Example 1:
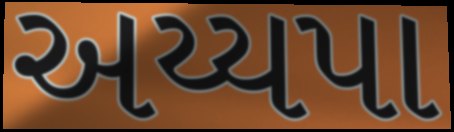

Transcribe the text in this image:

અય્યપા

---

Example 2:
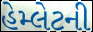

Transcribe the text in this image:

હેમ્લેટની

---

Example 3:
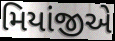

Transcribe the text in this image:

મિયાંજીએ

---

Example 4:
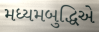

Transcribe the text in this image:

મધ્યમબુદ્ધિએ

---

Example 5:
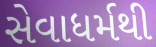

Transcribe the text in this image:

સેવાધર્મથી